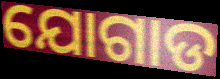
ଯୋଗାଡ